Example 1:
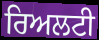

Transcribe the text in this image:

ਰਿਅਲਟੀ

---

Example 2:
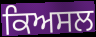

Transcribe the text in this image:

ਕਿਅਸਲ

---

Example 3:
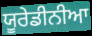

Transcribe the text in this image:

ਯੂਰੇਡੀਨੀਆ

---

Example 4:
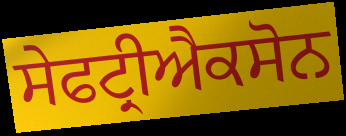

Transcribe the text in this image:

ਸੇਫਟ੍ਰੀਐਕਸੋਨ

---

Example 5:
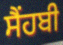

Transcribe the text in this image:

ਸੈਂਹਬੀ